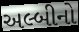
અલ્બીનો